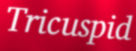
Tricuspid